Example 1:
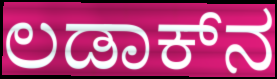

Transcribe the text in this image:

ಲಡಾಕ್‌ನ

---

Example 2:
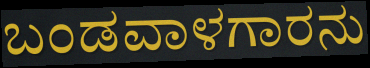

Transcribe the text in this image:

ಬಂಡವಾಳಗಾರನು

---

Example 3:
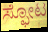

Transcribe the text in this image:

ಸ್ಫೋಟ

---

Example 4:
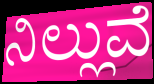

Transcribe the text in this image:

ನಿಲ್ಲುವೆ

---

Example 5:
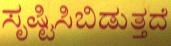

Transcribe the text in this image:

ಸೃಷ್ಟಿಸಿಬಿಡುತ್ತದೆ